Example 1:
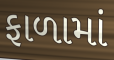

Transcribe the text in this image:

ફાળામાં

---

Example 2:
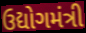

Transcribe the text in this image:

ઉદ્યોગમંત્રી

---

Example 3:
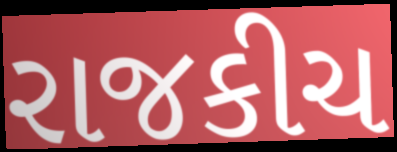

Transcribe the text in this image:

રાજકીચ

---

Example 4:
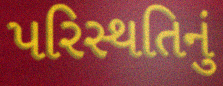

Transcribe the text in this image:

પરિસ્થતિનું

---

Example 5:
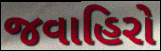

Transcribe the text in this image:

જવાહિરો